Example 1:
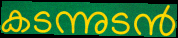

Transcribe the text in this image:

കടന്നുടൻ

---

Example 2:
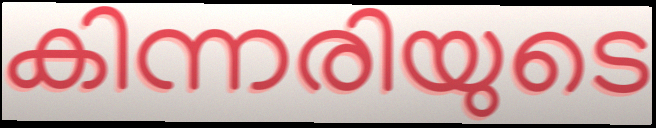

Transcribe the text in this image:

കിന്നരിയുടെ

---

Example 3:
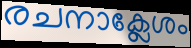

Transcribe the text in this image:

രചനാക്ലേശം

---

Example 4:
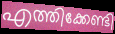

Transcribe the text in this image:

എത്തിക്കേണ്ടി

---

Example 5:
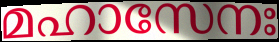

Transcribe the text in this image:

മഹാസേനഃ